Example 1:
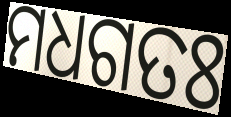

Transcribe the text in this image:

ମଧଗତଃ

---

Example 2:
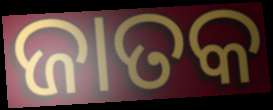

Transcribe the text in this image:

ଜାତକ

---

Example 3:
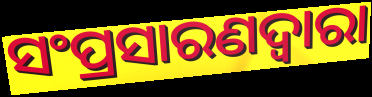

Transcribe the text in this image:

ସଂପ୍ରସାରଣଦ୍ଵାରା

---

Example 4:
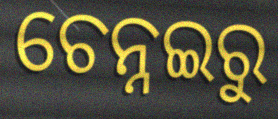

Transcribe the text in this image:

ଚେନ୍ନଇରୁ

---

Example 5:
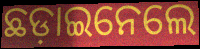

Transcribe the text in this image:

ଛଡ଼ାଇନେଲେ